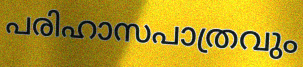
പരിഹാസപാത്രവും